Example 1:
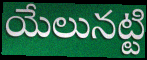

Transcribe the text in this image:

యేలునట్టి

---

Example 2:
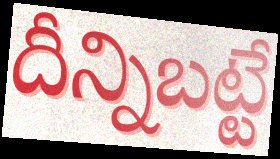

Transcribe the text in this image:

దీన్నిబట్టే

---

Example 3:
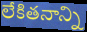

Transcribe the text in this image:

లేకితనాన్ని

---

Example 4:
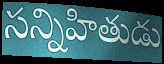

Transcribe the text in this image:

సన్నిహితుడు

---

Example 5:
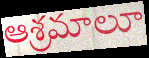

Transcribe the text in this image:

ఆశ్రమాలూ